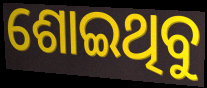
ଶୋଇଥିବୁ